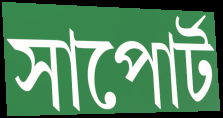
সাপোর্ট